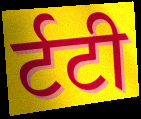
र्टटी